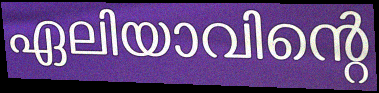
ഏലിയാവിന്റെ